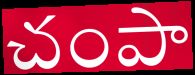
చంపా